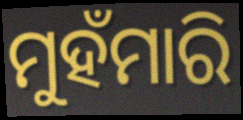
ମୁହଁମାରି